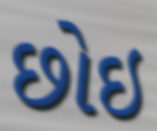
છોઇ